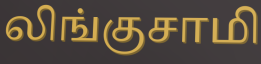
லிங்குசாமி